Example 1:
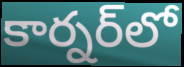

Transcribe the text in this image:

కార్నర్‌లో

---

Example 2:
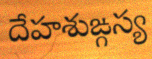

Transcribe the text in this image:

దేహశుఙ్గస్య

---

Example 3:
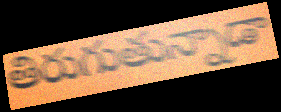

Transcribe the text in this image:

తిరుగుతున్నాడా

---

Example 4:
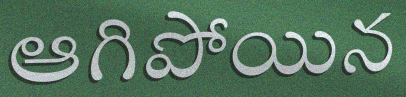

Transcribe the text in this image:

ఆగిపోయిన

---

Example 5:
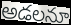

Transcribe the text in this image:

అడలనూ